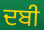
ਦਬੀ